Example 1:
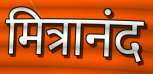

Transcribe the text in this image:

मित्रानंद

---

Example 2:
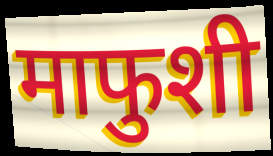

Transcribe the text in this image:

माफुशी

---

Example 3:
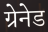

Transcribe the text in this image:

ग्रेनेड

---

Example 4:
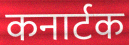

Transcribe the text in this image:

कनार्टक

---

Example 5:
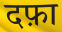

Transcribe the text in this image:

दफ़ा